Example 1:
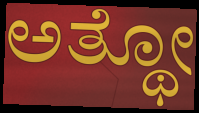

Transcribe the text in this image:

ಅತ್ಥೋ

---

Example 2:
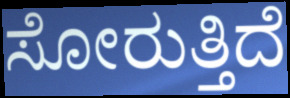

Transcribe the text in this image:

ಸೋರುತ್ತಿದೆ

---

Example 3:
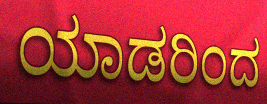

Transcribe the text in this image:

ಯಾಡರಿಂದ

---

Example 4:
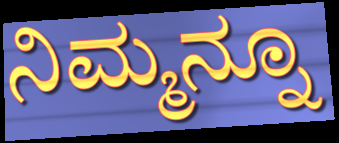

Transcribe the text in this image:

ನಿಮ್ಮನ್ನೂ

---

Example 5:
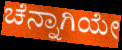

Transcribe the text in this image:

ಚೆನ್ನಾಗಿಯೇ